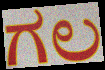
ಗಲ